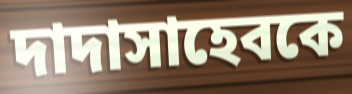
দাদাসাহেবকে